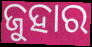
ଜୁହାର